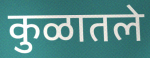
कुळातले